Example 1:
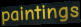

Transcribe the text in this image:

paintings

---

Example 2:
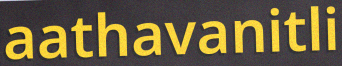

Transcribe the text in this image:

aathavanitli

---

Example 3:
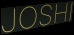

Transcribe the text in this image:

JOSHI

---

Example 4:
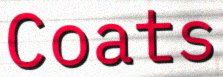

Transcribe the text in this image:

Coats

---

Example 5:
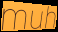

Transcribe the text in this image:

muh